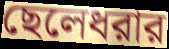
ছেলেধরার